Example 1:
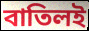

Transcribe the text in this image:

বাতিলই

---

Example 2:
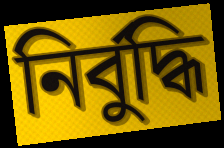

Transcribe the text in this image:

নির্বুদ্ধি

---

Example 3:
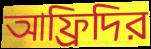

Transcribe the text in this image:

আফ্রিদির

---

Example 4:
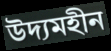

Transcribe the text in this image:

উদ্যমহীন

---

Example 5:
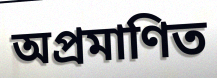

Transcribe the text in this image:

অপ্রমাণিত